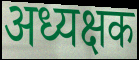
अध्यक्षक